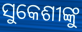
ସୁକେଶୀଙ୍କୁ